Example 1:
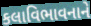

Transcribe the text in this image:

કલાવિભાવનાને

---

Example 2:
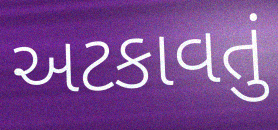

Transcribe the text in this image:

અટકાવતું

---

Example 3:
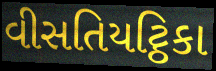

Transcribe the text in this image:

વીસતિયટ્ઠિકા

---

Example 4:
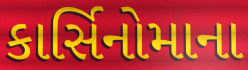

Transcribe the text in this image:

કાર્સિનોમાના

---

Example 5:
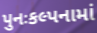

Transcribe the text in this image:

પુનઃકલ્પનામાં